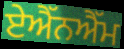
ਏਐੱਨਐੱਮ